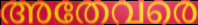
അതേവരെ